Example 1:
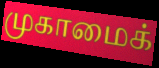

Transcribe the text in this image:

முகாமைக்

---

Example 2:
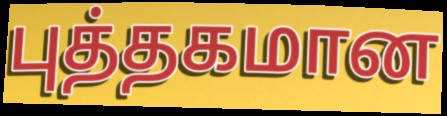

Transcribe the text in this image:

புத்தகமான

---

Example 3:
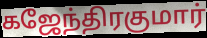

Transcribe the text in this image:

கஜேந்திரகுமார்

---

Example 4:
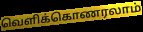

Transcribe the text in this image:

வெளிக்கொணரலாம்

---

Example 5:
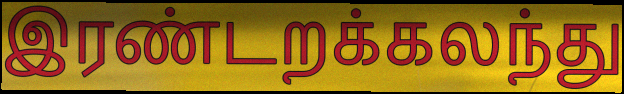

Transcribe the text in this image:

இரண்டறக்கலந்து